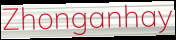
Zhonganhay